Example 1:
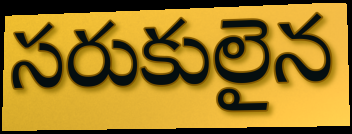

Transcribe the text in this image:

సరుకులైన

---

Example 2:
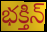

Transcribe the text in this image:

భక్తిన్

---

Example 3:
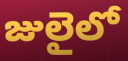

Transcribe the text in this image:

జులైలో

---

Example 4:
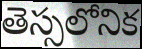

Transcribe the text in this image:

తెస్సలోనిక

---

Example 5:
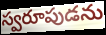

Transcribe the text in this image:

స్వరూపుడను